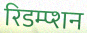
रिडम्प्शन